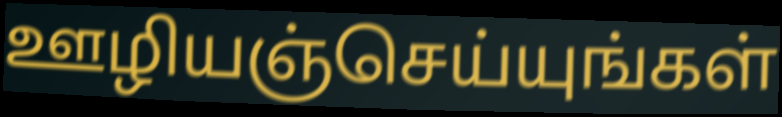
ஊழியஞ்செய்யுங்கள்